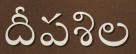
దీపశిల